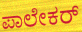
ಪಾಲೇಕರ್